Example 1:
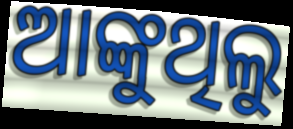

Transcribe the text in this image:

ଆଙ୍କୁଥିଲୁ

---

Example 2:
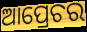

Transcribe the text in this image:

ଆପ୍ରେଚର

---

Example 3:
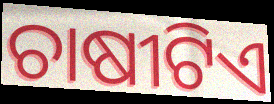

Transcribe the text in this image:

ଚାଷୀଟିଏ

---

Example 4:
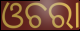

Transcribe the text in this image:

ଓଚରା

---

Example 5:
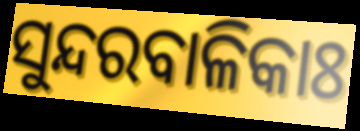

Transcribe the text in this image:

ସୁନ୍ଦରବାଳିକାଃ